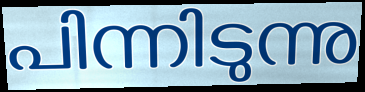
പിന്നിടുന്നു